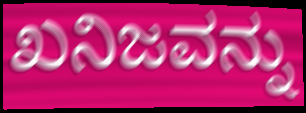
ಖನಿಜವನ್ನು